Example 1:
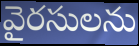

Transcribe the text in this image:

వైరసులను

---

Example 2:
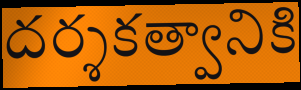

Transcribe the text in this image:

దర్శకత్వానికి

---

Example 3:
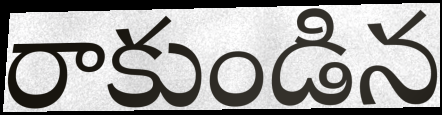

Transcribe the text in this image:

రాకుండిన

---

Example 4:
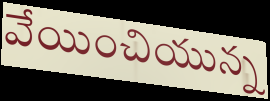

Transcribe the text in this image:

వేయించియున్న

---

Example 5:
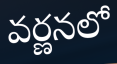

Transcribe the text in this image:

వర్ణనలో